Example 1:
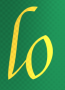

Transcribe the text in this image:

lo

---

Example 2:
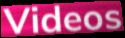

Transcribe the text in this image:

Videos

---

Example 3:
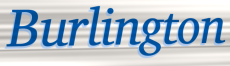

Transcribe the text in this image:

Burlington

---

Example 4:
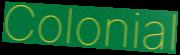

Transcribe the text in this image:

Colonial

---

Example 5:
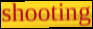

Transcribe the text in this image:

shooting